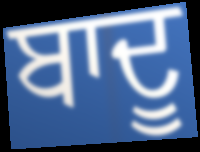
ਬਾਦੂ